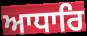
ਆਧਾਰਿ